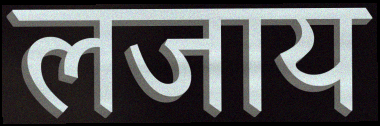
लजाय